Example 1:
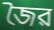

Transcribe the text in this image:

জৈৱ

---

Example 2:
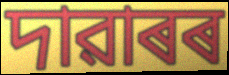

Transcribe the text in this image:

দাৱাৰৰ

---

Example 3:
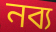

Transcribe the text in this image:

নব্য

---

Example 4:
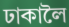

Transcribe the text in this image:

ঢাকালৈ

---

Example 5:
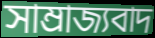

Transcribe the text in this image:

সাম্ৰাজ্যবাদ